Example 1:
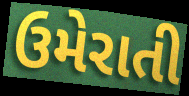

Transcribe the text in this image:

ઉમેરાતી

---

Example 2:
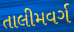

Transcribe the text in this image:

તાલીમવર્ગ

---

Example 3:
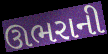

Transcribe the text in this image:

ઊભરાની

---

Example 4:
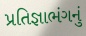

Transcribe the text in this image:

પ્રતિજ્ઞાભંગનું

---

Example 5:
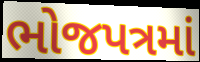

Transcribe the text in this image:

ભોજપત્રમાં